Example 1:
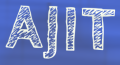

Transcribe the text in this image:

AJIT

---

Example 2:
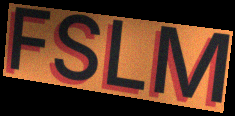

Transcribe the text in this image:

FSLM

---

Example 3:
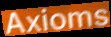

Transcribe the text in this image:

Axioms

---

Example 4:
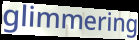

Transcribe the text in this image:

glimmering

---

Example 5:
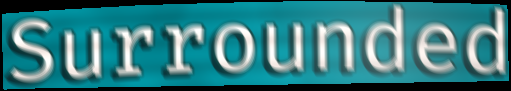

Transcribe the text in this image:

Surrounded